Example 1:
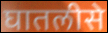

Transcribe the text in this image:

घातलीसे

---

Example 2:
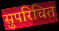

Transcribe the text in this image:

सुपरिचित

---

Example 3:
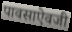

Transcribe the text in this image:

पावसाऐवजी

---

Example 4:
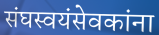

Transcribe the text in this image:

संघस्वयंसेवकांना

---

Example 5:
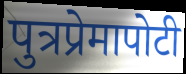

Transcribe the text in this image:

पुत्रप्रेमापोटी